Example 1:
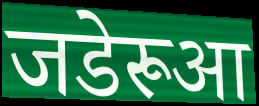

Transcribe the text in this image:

जडेरूआ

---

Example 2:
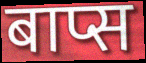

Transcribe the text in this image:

बाप्स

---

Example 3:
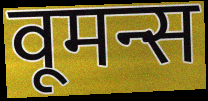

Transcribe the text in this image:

वूमन्स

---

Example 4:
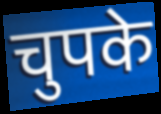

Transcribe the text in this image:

चुपके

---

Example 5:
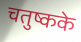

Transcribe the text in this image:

चतुष्कके